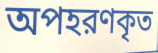
অপহরণকৃত